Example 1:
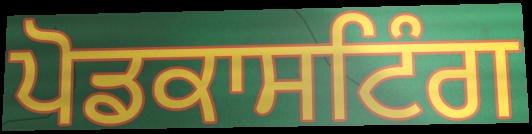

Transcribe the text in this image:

ਪੋਡਕਾਸਟਿੰਗ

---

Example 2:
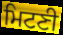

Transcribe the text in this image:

ਮਿਟਣੀ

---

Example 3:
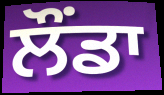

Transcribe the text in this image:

ਲੌਂਡਾ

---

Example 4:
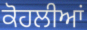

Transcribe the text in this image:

ਕੋਹਲੀਆਂ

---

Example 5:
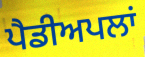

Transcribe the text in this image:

ਪੈਡੀਅਪਲਾਂ